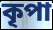
কৃপা